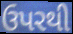
ઉપરથી